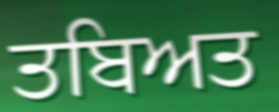
ਤਬਿਅਤ